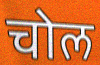
चोल